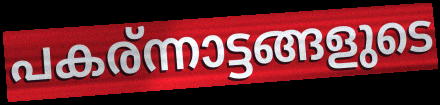
പകര്ന്നാട്ടങ്ങളുടെ